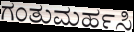
ಗಂತುಮರ್ಹಸಿ